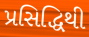
પ્રસિદ્ધિથી